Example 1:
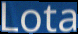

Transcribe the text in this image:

Lota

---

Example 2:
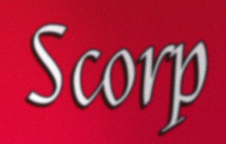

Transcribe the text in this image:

Scorp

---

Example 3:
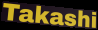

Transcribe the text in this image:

Takashi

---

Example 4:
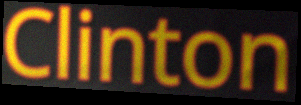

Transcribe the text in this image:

Clinton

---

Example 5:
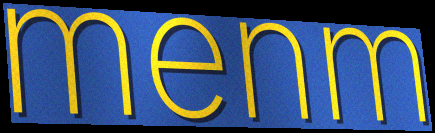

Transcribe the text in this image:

menm